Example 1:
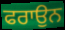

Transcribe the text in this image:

ਫਰਾਉਨ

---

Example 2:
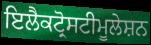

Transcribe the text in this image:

ਇਲੈਕਟ੍ਰੋਸਟੀਮੂਲੇਸ਼ਨ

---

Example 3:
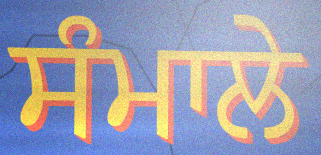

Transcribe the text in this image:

ਸੰਮਾਲੇ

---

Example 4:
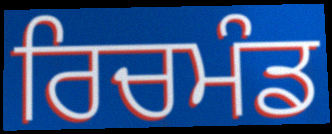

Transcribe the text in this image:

ਰਿਚਮੰਡ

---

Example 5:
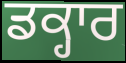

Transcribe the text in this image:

ਡਕ੍ਹਾਰ